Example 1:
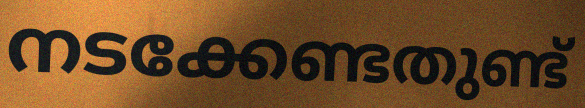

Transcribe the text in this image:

നടക്കേണ്ടതുണ്ട്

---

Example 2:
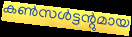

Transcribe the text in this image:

കൺസൾട്ടന്റുമായ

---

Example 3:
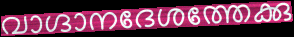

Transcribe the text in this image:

വാഗ്ദാനദേശത്തേക്കു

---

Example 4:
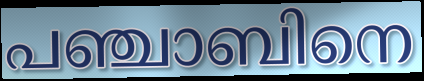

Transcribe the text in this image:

പഞ്ചാബിനെ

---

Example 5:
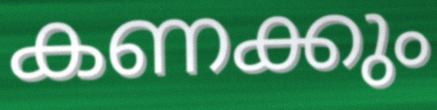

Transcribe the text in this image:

കണക്കും